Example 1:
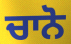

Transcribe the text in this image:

ਚਾਨੋ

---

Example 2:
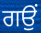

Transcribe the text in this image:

ਗਉਂ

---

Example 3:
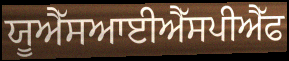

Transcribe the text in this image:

ਯੂਐੱਸਆਈਐੱਸਪੀਐੱਫ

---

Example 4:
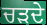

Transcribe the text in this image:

ਚੜਦੇ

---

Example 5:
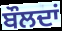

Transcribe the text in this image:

ਬੌਲਦਾਂ